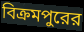
বিক্রমপুরের